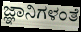
ಜ್ಞಾನಿಗಳಂತೆ